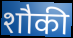
शौकी